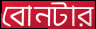
বোনটার